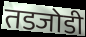
तडजोडी